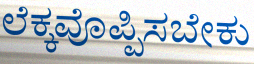
ಲೆಕ್ಕವೊಪ್ಪಿಸಬೇಕು